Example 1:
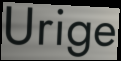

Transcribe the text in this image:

Urige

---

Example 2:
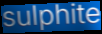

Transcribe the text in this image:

sulphite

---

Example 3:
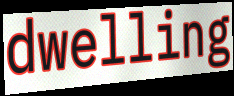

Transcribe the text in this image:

dwelling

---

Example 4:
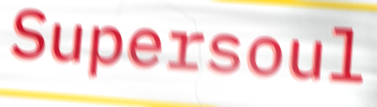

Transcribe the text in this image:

Supersoul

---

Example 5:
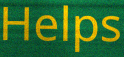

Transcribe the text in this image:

Helps